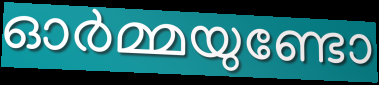
ഓർമ്മയുണ്ടോ